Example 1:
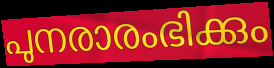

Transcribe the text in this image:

പുനരാരംഭിക്കും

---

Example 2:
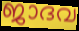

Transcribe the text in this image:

ജാദവ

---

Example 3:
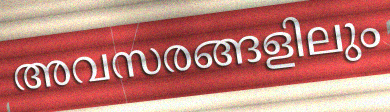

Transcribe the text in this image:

അവസരങ്ങളിലും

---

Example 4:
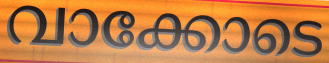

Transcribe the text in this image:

വാക്കോടെ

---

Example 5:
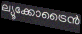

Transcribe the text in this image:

ല്യൂക്കോട്രൈൻ